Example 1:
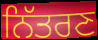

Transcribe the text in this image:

ਨਿੱਤਰਣ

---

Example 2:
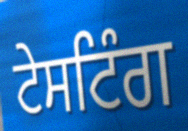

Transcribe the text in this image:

ਟੇਸਟਿੰਗ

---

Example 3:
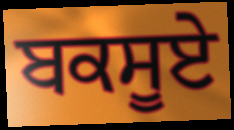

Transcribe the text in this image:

ਬਕਸੂਏ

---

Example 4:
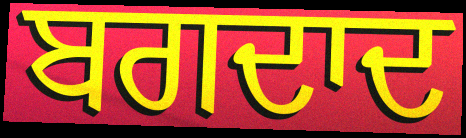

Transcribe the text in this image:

ਬਗਦਾਦ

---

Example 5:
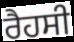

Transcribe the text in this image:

ਰੈਹਸੀ